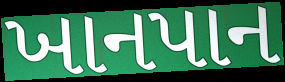
ખાનપાન